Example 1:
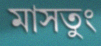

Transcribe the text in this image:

মাসতুং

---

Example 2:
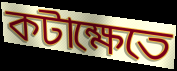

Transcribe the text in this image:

কটাক্ষেতে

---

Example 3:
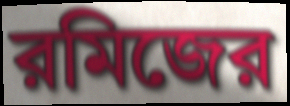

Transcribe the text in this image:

রমিজের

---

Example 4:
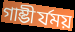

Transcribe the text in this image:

গাম্ভীর্যময়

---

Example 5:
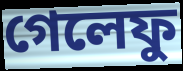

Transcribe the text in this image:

গেলেফু